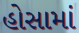
હોસામાં